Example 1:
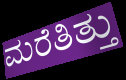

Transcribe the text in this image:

ಮರೆತಿತ್ತು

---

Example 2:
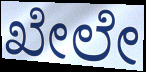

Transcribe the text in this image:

ಖೇಲೇ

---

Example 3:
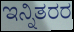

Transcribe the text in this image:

ಇನ್ನಿತರರ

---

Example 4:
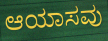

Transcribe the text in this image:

ಆಯಾಸವು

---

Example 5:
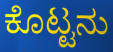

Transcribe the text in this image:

ಕೊಟ್ಟನು